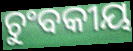
ଚୁଂବକୀୟ